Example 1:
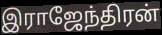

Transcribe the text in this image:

இராஜேந்திரன்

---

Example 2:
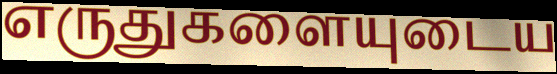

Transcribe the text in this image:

எருதுகளையுடைய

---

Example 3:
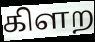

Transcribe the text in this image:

கிளற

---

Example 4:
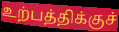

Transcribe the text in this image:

உற்பத்திக்குச்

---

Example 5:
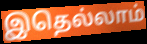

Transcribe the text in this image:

இதெல்லாம்